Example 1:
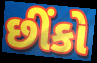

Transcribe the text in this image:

છીંકો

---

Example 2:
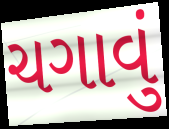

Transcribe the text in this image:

ચગાવું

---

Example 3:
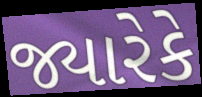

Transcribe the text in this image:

જ્યારેકે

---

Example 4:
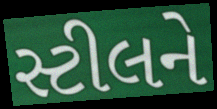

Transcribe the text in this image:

સ્ટીલને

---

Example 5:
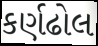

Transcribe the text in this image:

કર્ણઢોલ